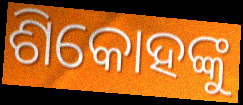
ଶିକୋହଙ୍କୁ